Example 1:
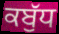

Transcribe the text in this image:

ਕਬੁੱਧ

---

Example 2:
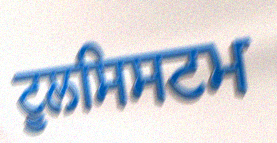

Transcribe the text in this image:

ਟੂਲਸਿਸਟਮ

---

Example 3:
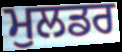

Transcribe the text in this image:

ਮੁਲਡਰ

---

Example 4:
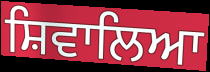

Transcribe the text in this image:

ਸ਼ਿਵਾਲਿਆ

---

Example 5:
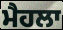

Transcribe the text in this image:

ਮੈਹਲਾ